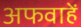
अफवाहें